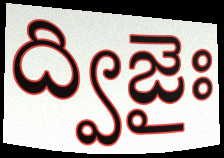
ద్విజైః